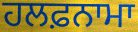
ਹਲਫ਼ਨਾਮਾ